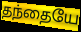
தந்தையே